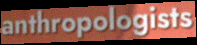
anthropologists